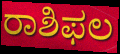
ರಾಶಿಫಲ